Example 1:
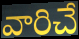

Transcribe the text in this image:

వారిచే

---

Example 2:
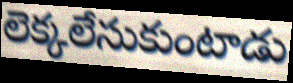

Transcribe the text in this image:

లెక్కలేసుకుంటాడు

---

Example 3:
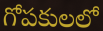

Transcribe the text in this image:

గోపకులలో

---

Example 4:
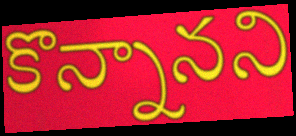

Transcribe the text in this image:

కొన్నానని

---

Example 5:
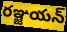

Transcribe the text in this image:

రఞ్జయన్